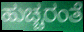
ಹುಚ್ಚರಂತೆ